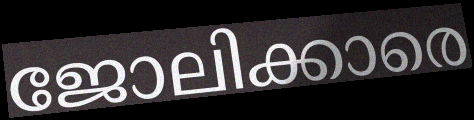
ജോലിക്കാരെ